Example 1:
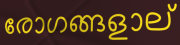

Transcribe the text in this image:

രോഗങ്ങളാല്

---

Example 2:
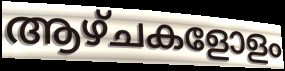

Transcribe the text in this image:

ആഴ്ചകളോളം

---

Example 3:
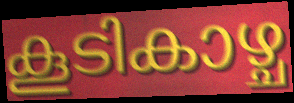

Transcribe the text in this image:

കൂടികാഴ്ച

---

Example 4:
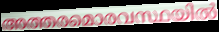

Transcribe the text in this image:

അത്തരമൊരവസ്ഥയിൽ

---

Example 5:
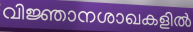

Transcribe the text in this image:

വിജ്ഞാനശാഖകളിൽ